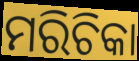
ମରିଚିକା